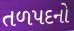
તળપદનો